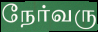
நேர்வரு